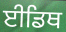
ਈਡਿਥ